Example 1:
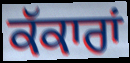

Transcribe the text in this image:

ਕੱਕਾਰਾਂ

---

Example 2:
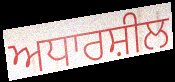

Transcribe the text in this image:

ਅਧਾਰਸ਼ੀਲ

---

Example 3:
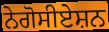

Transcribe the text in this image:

ਨੇਗੋਸੀਏਸ਼ਨ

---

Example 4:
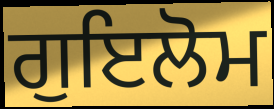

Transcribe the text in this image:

ਗੁਇਲੋਮ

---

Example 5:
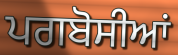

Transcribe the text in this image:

ਪਗਬੋਸੀਆਂ